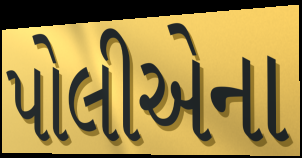
પોલીએના